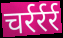
चर्रर्रर्र